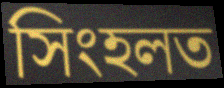
সিংহলত